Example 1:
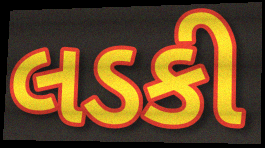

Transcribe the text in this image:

લડકી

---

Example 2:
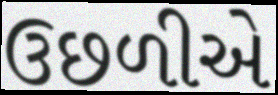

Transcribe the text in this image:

ઉછળીએ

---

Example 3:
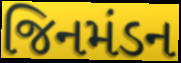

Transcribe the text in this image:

જિનમંડન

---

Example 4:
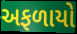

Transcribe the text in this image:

અફળાયો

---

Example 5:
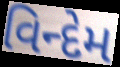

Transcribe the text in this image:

વિન્દેમ